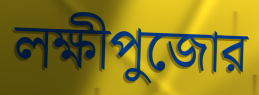
লক্ষীপুজোর